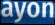
ayon